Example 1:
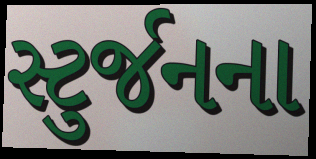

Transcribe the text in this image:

સ્ટુર્જનના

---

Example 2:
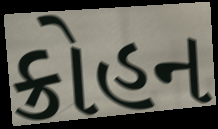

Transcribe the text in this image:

ક્રોહન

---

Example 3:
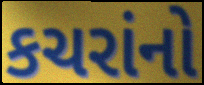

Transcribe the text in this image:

કચરાંનો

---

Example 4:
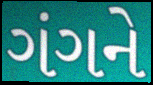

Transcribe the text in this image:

ગંગને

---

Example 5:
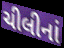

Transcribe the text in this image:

ચીલીનાં